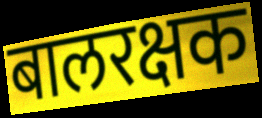
बालरक्षक